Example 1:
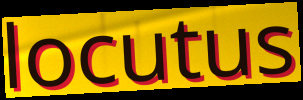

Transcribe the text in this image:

locutus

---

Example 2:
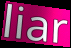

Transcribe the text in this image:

liar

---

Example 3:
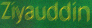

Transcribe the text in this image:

Ziyauddin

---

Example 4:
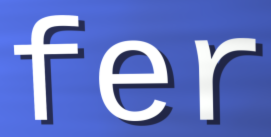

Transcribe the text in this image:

fer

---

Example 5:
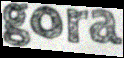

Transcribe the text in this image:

gora